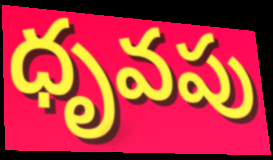
ధృవపు